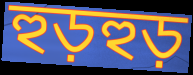
হুড়হুড়